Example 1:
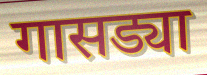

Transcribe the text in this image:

गासड्या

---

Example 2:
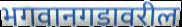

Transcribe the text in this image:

भगवानगडावरील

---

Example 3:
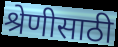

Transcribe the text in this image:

श्रेणीसाठी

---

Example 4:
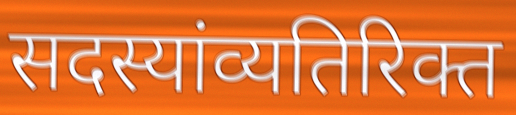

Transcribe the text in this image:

सदस्यांव्यतिरिक्त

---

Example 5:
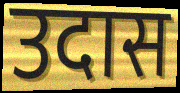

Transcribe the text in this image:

उदास